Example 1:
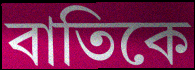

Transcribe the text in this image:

বাতিকে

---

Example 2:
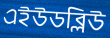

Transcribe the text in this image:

এইউডব্লিউ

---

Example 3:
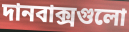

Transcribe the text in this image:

দানবাক্সগুলো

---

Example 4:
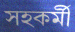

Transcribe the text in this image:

সহকর্মী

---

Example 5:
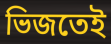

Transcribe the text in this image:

ভিজতেই